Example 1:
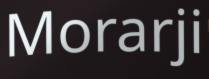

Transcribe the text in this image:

Morarji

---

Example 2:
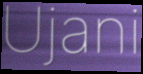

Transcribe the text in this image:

Ujani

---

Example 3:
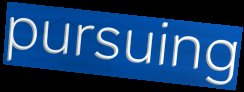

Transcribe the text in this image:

pursuing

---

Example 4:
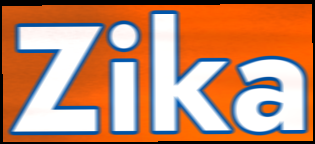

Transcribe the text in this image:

Zika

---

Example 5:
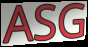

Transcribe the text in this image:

ASG